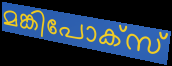
മങ്കിപോക്സ്